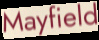
Mayfield